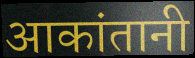
आकांतानी